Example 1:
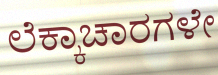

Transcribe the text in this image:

ಲೆಕ್ಕಾಚಾರಗಳೇ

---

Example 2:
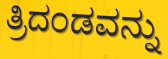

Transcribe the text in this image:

ತ್ರಿದಂಡವನ್ನು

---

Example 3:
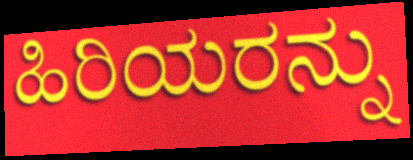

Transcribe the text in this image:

ಹಿರಿಯರನ್ನು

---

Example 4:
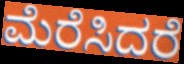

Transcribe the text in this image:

ಮೆರೆಸಿದರೆ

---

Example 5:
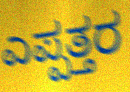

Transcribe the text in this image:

ಎಪ್ಪತ್ತರ